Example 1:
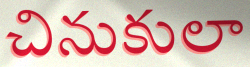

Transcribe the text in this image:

చినుకులా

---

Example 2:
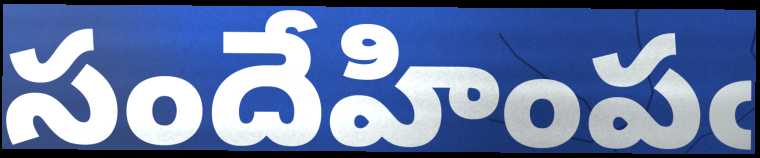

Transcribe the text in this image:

సందేహింపఁ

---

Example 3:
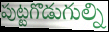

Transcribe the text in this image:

పుట్టగొడుగుల్ని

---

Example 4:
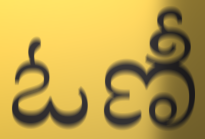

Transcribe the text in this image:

ఓణీ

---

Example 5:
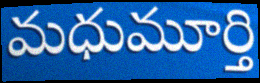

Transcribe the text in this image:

మధుమూర్తి